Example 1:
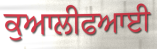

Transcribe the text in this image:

ਕੁਆਲੀਫਆਈ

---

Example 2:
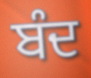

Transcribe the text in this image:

ਬੰਦ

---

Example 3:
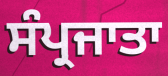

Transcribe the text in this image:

ਸੰਪ੍ਰਜਾਤਾ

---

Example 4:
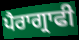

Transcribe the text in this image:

ਪੈਰਾਗ੍ਰਾਫੀ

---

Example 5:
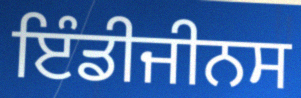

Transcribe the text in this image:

ਇੰਡੀਜੀਨਸ